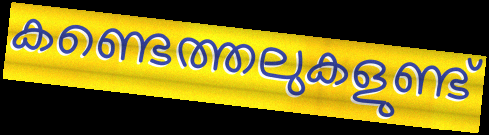
കണ്ടെത്തലുകളുണ്ട്